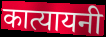
कात्यायनी